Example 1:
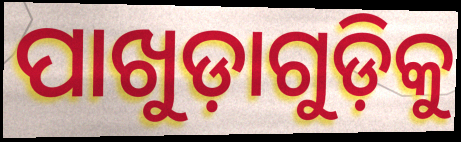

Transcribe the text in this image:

ପାଖୁଡ଼ାଗୁଡ଼ିକୁ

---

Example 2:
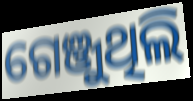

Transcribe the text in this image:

ଗେଞ୍ଜୁଥିଲି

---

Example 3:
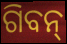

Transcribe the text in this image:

ଗିବନ୍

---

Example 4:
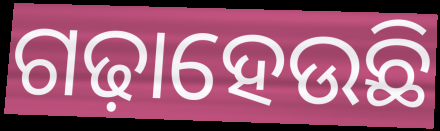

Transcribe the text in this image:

ଗଢ଼ାହେଉଛି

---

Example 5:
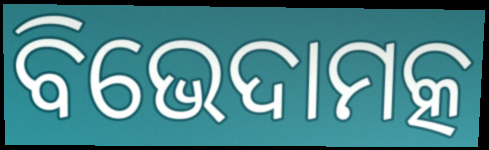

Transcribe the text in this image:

ବିଭେଦାମତ୍କ